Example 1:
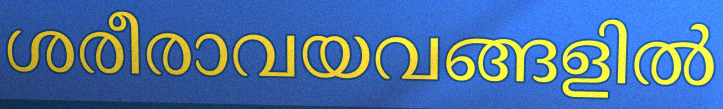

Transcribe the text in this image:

ശരീരാവയവങ്ങളിൽ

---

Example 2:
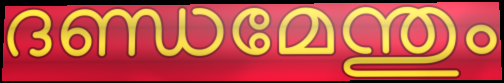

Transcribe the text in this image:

ദണ്ഡമേന്തും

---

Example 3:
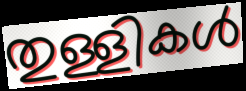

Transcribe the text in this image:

തുള്ളികൾ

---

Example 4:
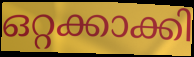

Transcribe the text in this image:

ഒറ്റക്കാക്കി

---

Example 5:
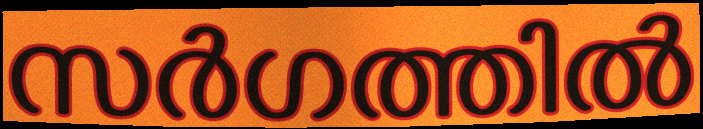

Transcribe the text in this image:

സർഗത്തിൽ